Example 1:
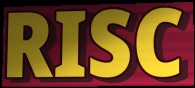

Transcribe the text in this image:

RISC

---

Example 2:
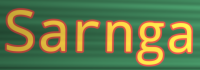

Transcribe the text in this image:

Sarnga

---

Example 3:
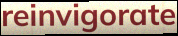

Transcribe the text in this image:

reinvigorate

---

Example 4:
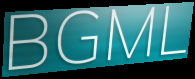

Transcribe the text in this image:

BGML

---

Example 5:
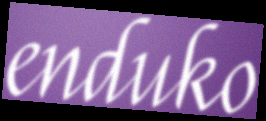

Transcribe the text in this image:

enduko